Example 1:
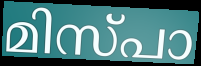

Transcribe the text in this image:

മിസ്പാ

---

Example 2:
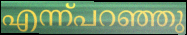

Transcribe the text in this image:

എന്ന്പറഞ്ഞു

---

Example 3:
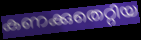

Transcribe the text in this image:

കണക്കുതെറ്റിയ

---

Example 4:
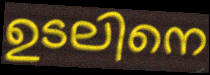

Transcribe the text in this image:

ഉടലിനെ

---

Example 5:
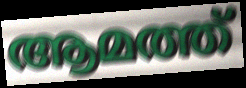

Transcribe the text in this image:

ആമത്ത്